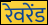
रेवरेंड